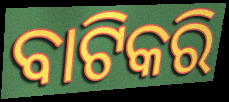
ବାଟିକରି